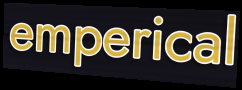
emperical